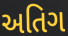
અતિગ